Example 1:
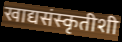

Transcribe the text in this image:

खाद्यसंस्कृतीशी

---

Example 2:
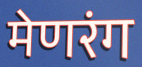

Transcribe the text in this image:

मेणरंग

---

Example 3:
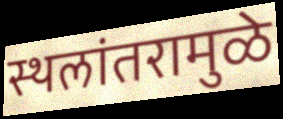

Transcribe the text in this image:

स्थलांतरामुळे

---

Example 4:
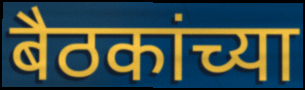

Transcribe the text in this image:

बैठकांच्या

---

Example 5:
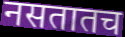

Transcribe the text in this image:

नसतातच